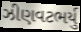
ઝીણવટભર્યુ